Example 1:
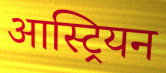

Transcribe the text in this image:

आस्ट्रियन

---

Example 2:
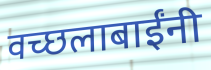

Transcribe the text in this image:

वच्छलाबाईंनी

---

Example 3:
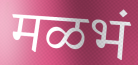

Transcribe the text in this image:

मळभं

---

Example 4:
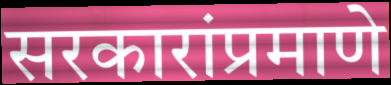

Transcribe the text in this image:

सरकारांप्रमाणे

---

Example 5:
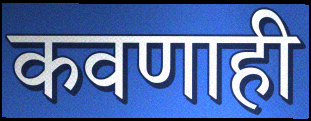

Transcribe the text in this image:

कवणाही